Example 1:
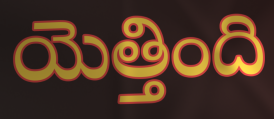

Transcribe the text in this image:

యెత్తింది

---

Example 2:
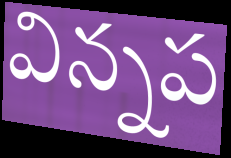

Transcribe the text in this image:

విన్నప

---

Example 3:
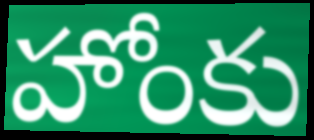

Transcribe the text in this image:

హోంకు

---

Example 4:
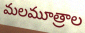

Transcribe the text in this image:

మలమూత్రాల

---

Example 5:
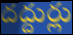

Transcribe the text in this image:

దద్దుర్లు